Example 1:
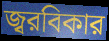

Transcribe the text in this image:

জ্বরবিকার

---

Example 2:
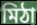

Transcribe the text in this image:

মিঠা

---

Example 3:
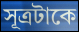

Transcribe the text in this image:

সূত্রটাকে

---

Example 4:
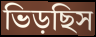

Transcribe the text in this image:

ভিড়ছিস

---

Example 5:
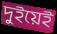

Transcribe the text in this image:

দুইয়েই